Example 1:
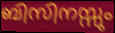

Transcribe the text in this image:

ബിസിനസ്സും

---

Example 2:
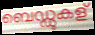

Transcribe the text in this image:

ബെഡ്ഡുകള്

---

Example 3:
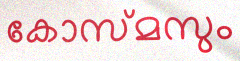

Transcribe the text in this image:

കോസ്മസും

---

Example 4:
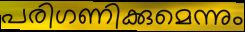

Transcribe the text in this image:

പരിഗണിക്കുമെന്നും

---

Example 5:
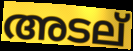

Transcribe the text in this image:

അടല്